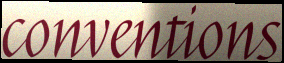
conventions